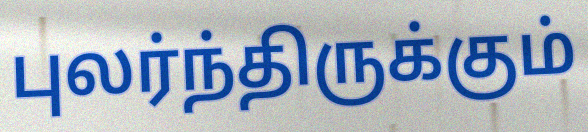
புலர்ந்திருக்கும்